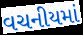
વચનીયમાં